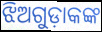
ଝିଅଗୁଡ଼ାକଙ୍କ